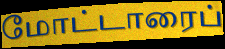
மோட்டாரைப்